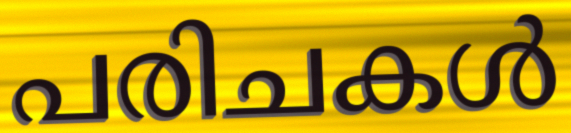
പരിചകൾ